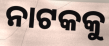
ନାଟକକୁ